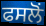
ਫਸਲੋਂ